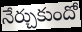
నేర్చుకుందో